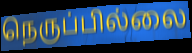
நெருப்பில்லை